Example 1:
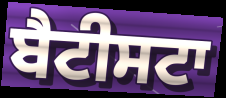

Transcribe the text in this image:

ਬੈਟੀਸਟਾ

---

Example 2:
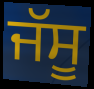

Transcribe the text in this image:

ਜੱਸੂ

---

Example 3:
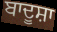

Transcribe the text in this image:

ਬਾਦੂਸ਼ਾ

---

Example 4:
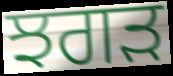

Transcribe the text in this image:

ਝਗੜ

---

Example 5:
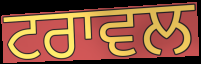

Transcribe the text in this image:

ਟਰਾਵਲ